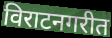
विराटनगरीत